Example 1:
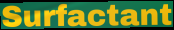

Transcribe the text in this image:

Surfactant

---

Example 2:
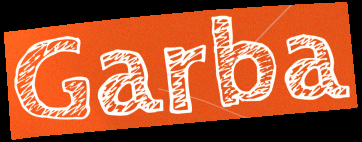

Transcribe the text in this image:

Garba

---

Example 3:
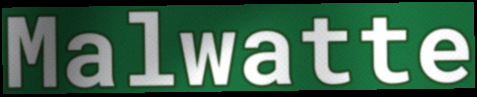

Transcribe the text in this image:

Malwatte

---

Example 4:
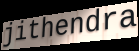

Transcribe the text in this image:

jithendra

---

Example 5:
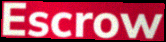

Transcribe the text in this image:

Escrow